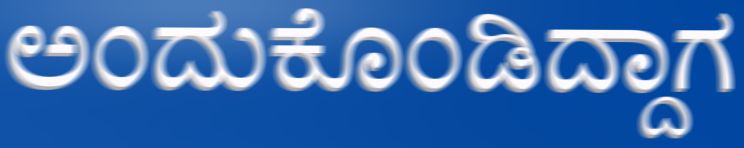
ಅಂದುಕೊಂಡಿದ್ದಾಗ